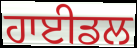
ਹਾਈਡਲ